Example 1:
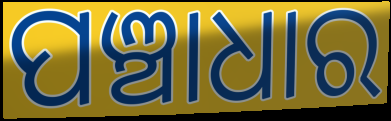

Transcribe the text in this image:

ପଞ୍ଚାଧାର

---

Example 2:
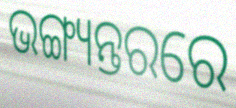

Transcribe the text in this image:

ଭଙ୍ଗ୍ୟନ୍ତରରେ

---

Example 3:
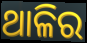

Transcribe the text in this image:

ଥାଳିର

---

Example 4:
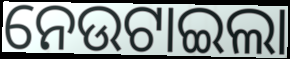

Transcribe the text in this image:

ନେଉଟାଇଲା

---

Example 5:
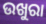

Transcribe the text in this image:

ଉଖୁରା